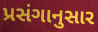
પ્રસંગાનુસાર